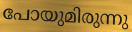
പോയുമിരുന്നു